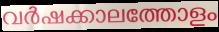
വർഷക്കാലത്തോളം